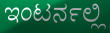
ಇಂಟರ್ನಲ್ಲಿ